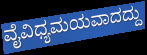
ವೈವಿಧ್ಯಮಯವಾದದ್ದು